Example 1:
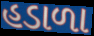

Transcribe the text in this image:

હડાળા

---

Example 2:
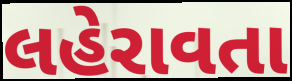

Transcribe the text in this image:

લહેરાવતા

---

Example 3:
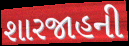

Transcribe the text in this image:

શારજાહની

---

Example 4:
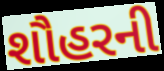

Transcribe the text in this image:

શૌહરની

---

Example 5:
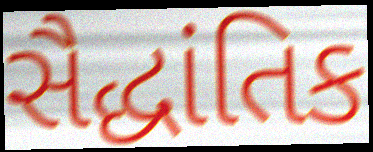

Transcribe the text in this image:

સૈદ્ધાંતિક